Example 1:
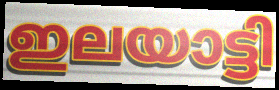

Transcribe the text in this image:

ഇലയാട്ടി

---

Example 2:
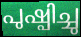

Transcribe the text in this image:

പുഷ്പിച്ചു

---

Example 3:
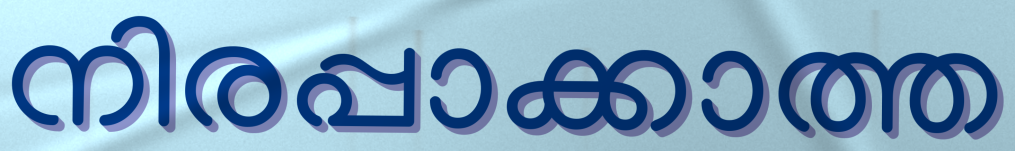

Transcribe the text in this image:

നിരപ്പാക്കാത്ത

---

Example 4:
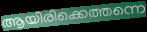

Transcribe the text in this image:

ആയിരിക്കെത്തന്നെ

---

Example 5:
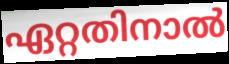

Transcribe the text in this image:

ഏറ്റതിനാൽ